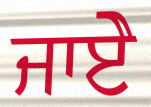
ਜਾਏੇ